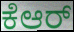
ಕೆಆರ್